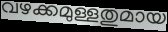
വഴക്കമുള്ളതുമായ